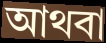
আথবা